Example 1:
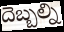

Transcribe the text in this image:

దెబ్బల్ని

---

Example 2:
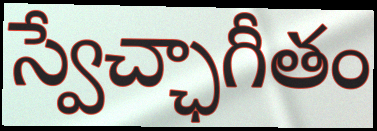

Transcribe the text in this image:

స్వేచ్ఛాగీతం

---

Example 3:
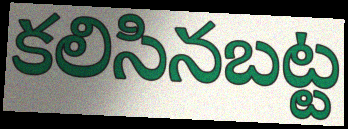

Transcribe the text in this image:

కలిసినబట్ట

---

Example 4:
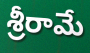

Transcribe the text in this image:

శ్రీరామే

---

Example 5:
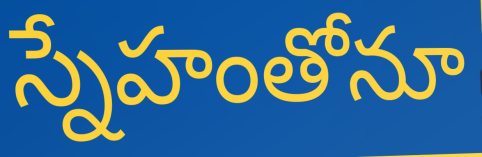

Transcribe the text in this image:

స్నేహంతోనూ